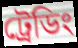
ট্রেডিং